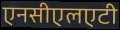
एनसीएलएटी